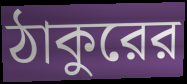
ঠাকুরের